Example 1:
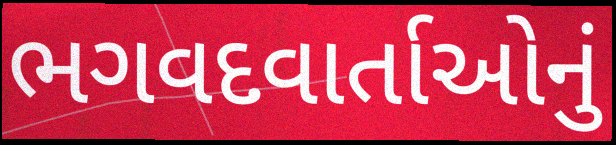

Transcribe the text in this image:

ભગવદવાર્તાઓનું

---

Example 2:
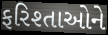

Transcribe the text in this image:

ફરિશ્તાઓને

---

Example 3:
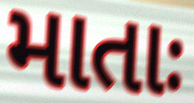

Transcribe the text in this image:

માતાઃ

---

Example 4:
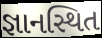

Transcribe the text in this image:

જ્ઞાનસ્થિત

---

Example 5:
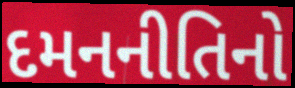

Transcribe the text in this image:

દમનનીતિનો